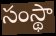
సంస్థా